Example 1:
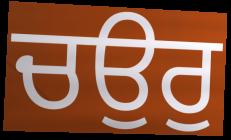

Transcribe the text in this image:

ਚਉਰੁ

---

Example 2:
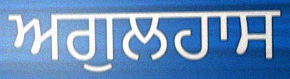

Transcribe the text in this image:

ਅਗੁਲਹਾਸ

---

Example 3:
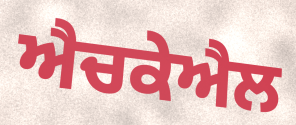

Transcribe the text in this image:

ਐਚਕੇਐਲ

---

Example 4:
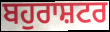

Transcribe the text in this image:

ਬਹੁਰਾਸ਼ਟਰ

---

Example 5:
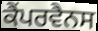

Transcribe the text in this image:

ਕੈਂਪਰਵੈਨਸ